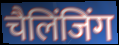
चैलिंजिंग